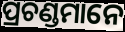
ପ୍ରଚଣ୍ଡମାନେ